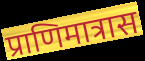
प्राणिमात्रास